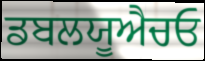
ਡਬਲਯੂਐਚਓ